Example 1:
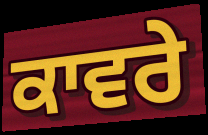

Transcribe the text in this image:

ਕਾਵਰੇ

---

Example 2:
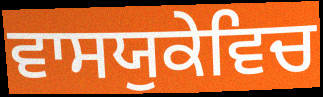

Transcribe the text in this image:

ਵਾਸਯੁਕੇਵਿਚ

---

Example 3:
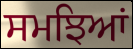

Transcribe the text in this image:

ਸਮਝਿਆਂ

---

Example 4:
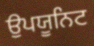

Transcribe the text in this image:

ਉਪਯੂਨਿਟ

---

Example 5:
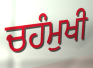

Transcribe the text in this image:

ਚਹੰਮੁਖੀ